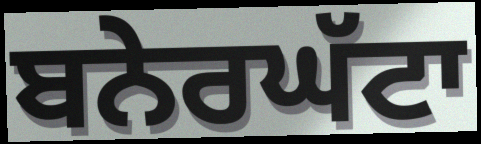
ਬਨੇਰਘੱਟਾ